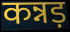
कन्नड़